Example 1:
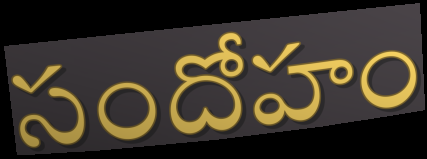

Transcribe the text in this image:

సందోహం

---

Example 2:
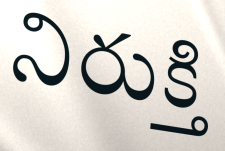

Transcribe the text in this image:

నిరుక్తి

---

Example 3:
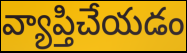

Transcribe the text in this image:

వ్యాప్తిచేయడం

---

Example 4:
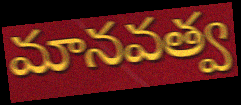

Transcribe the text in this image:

మానవత్వ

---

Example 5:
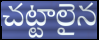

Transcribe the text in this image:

చట్టాలైన